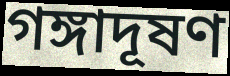
গঙ্গাদূষণ